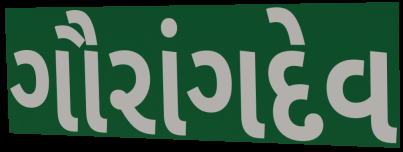
ગૌરાંગદેવ